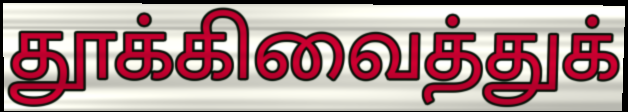
தூக்கிவைத்துக்